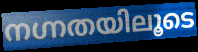
നഗ്നതയിലൂടെ